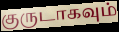
குருடாகவும்